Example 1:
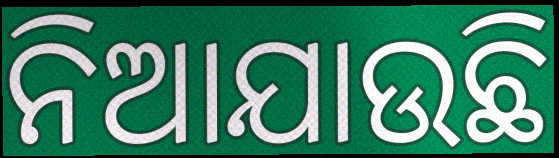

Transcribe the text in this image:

ନିଆଯାଉଛି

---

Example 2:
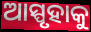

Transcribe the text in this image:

ଆସ୍ପୃହାକୁ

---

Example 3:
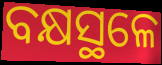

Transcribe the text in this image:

ବକ୍ଷସ୍ଥଳେ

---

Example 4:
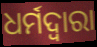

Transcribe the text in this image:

ଧର୍ମଦ୍ଵାରା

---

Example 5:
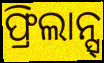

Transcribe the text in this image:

ଫ୍ରିଲାନ୍ସ୍